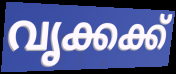
വൃക്കക്ക്